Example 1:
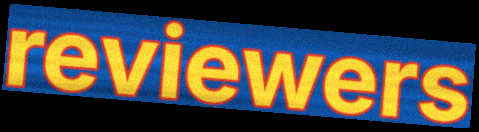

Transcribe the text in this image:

reviewers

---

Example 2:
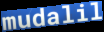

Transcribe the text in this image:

mudalil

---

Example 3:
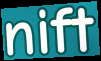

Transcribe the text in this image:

nift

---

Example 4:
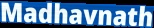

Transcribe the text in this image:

Madhavnath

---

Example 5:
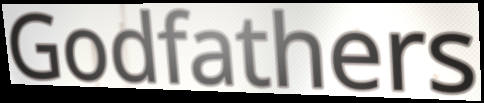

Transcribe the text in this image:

Godfathers